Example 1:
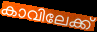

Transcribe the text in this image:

കാവിലേക്ക്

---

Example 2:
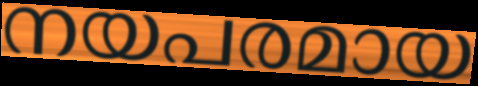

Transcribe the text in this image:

നയപരമായ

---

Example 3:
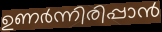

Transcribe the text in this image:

ഉണർന്നിരിപ്പാൻ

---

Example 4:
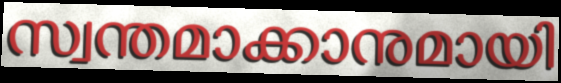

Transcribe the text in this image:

സ്വന്തമാക്കാനുമായി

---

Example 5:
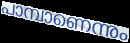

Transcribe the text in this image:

പാമ്പാണെന്നും